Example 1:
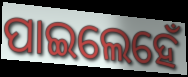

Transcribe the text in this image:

ପାଇଲେହେଁ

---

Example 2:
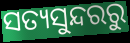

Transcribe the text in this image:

ସତ୍ୟସୁନ୍ଦରରୁ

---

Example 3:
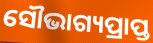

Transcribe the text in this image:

ସୌଭାଗ୍ୟପ୍ରାପ୍ତ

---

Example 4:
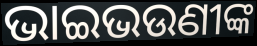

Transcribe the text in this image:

ଭାଇଭଉଣୀଙ୍କ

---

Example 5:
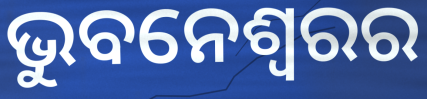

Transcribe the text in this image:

ଭୁବନେଶ୍ୱରର